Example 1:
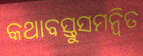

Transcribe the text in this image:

କଥାବସ୍ତୁସମନ୍ୱିତ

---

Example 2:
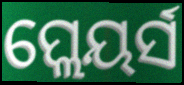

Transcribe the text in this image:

ପ୍ଲେୟର୍ସ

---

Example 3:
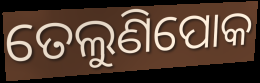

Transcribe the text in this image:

ତେଲୁଣିପୋକ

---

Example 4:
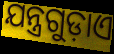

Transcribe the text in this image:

ଯନ୍ତ୍ରଗୁଡ଼ାଏ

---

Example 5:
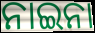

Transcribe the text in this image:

ନାଇନା